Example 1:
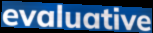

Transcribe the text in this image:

evaluative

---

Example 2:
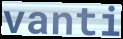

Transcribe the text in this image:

vanti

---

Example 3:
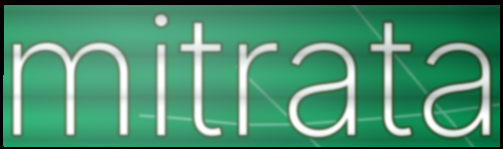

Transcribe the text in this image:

mitrata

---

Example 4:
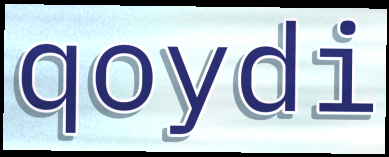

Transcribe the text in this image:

qoydi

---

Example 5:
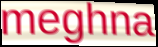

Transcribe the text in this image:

meghna